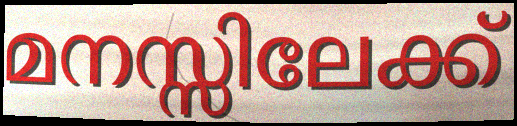
മനസ്സിലേക്ക്